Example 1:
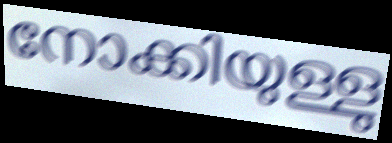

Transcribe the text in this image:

നോക്കിയുള്ളു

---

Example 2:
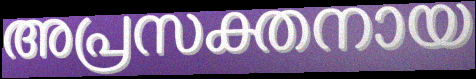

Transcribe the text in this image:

അപ്രസക്തനായ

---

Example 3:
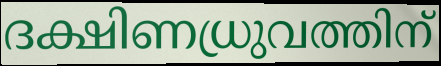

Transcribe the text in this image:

ദക്ഷിണധ്രുവത്തിന്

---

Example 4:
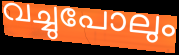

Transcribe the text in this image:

വച്ചുപോലും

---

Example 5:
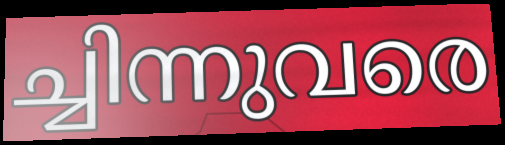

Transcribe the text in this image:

ച്ചിന്നുവരെ